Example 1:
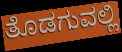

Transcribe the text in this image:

ತೊಡಗುವಲ್ಲಿ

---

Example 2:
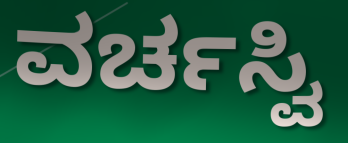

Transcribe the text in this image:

ವರ್ಚಸ್ವಿ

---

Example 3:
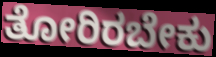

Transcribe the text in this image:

ತೋರಿರಬೇಕು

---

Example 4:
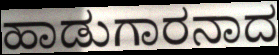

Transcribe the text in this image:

ಹಾಡುಗಾರನಾದ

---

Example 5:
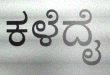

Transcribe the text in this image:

ಕಳೆದೈ